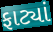
ફાટ્યાં